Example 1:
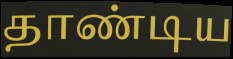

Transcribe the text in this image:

தாண்டிய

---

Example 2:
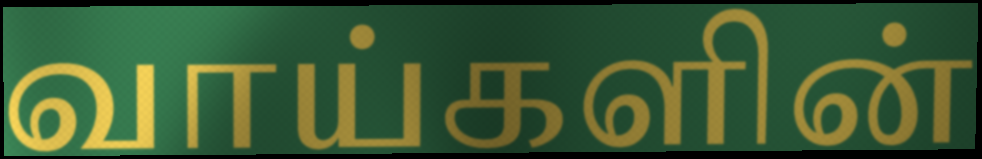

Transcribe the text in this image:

வாய்களின்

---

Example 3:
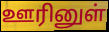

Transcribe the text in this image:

ஊரினுள்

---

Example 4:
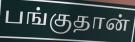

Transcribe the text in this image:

பங்குதான்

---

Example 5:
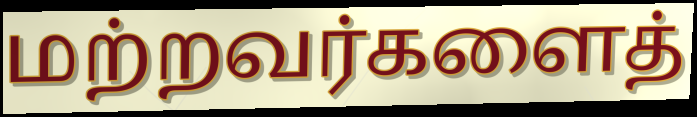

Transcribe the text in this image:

மற்றவர்களைத்